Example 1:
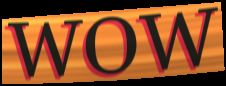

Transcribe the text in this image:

WOW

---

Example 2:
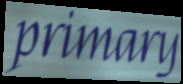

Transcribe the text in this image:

primary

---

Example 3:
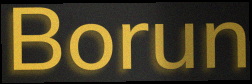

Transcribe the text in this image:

Borun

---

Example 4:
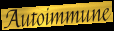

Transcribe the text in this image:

Autoimmune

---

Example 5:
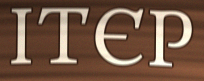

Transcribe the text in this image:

ITEP